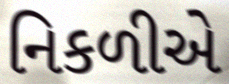
નિકળીએ